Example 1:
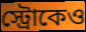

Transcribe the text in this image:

স্ট্রোকেও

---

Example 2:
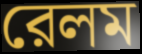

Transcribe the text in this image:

রেলম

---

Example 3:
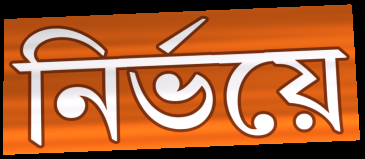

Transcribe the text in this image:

নির্ভয়ে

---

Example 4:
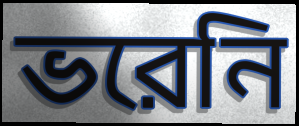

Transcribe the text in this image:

ভরেনি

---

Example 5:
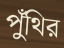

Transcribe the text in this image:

পুঁথির